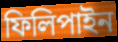
ফিলিপাইন